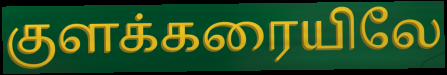
குளக்கரையிலே